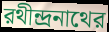
রথীন্দ্রনাথের